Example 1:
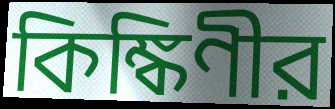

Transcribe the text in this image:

কিঙ্কিণীর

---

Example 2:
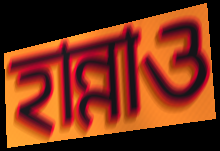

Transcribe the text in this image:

হান্নাও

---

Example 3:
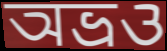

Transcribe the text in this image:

অভ্রও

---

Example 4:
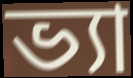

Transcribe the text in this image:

ভ্যা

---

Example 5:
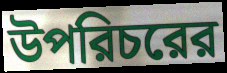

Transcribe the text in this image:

উপরিচরের